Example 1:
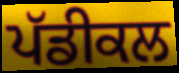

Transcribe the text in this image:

ਪੱਡੀਕਲ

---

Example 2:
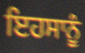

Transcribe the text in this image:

ਇਹਸਾਨੂੰ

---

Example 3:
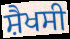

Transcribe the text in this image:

ਸ਼ੈਖਸੀ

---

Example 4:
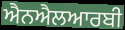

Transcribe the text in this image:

ਐਨਐਲਆਰਬੀ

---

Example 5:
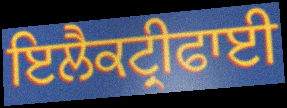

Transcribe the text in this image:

ਇਲੈਕਟ੍ਰੀਫਾਈ